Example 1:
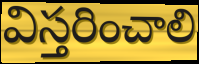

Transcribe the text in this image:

విస్తరించాలి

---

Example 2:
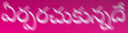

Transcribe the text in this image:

ఏర్పరచుకున్నదే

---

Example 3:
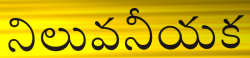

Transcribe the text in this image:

నిలువనీయక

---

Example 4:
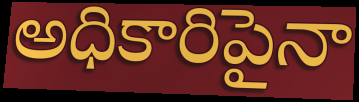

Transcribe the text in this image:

అధికారిపైనా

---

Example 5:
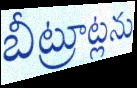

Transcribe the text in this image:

బీట్రూట్లను